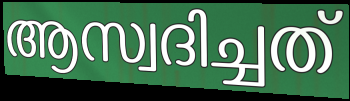
ആസ്വദിച്ചത്